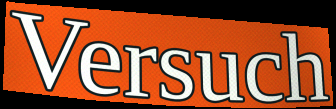
Versuch